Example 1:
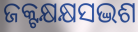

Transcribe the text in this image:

ଜକ୍ଟକ୍ଷକ୍ଷସଦ୍ଭଶ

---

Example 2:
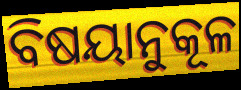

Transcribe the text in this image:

ବିଷୟାନୁକୂଳ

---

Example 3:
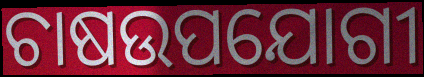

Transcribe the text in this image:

ଚାଷଉପଯୋଗୀ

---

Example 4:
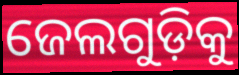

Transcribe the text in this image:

ଜେଲଗୁଡ଼ିକୁ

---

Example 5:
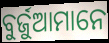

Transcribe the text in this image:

ବୁର୍ଜୁଆମାନେ